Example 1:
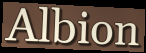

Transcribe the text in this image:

Albion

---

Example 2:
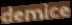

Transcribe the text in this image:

demice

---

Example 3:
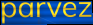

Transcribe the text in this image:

parvez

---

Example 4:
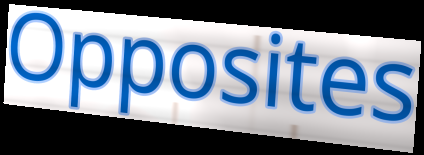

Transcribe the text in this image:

Opposites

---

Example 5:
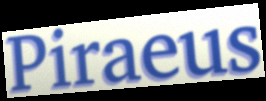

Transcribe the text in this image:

Piraeus